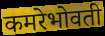
कमरेभोवती